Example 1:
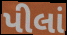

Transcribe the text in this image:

પીલાં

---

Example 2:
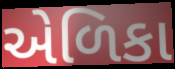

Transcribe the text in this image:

એળિકા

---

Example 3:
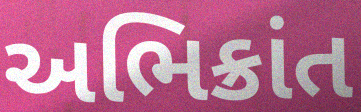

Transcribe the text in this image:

અભિક્રાંત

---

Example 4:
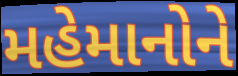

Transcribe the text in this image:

મહેમાનોને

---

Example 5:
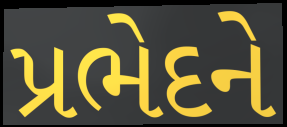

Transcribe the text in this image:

પ્રભેદને